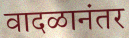
वादळानंतर